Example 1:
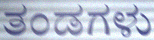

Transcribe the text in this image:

ತಂಡಗಳು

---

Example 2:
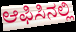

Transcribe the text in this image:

ಆಫಿಸಿನಲ್ಲಿ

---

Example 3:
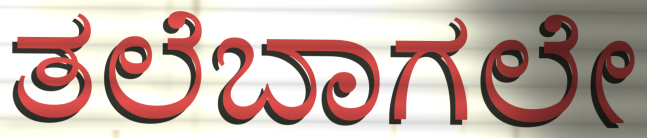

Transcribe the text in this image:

ತಲೆಬಾಗಲೇ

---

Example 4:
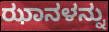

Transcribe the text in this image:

ಝಾನಳನ್ನು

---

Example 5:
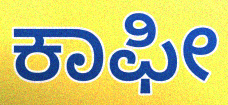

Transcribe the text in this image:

ಕಾಫೀ